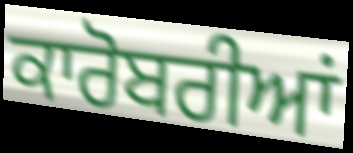
ਕਾਰੋਬਰੀਆਂ